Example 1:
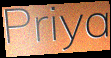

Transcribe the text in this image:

Priya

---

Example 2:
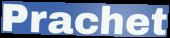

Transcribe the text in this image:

Prachet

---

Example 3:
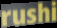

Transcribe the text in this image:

rushi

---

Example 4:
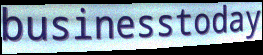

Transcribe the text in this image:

businesstoday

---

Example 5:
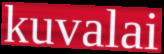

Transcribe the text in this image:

kuvalai